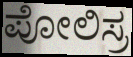
ಪೋಲಿಸ್ರ